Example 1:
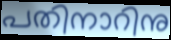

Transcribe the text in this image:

പതിനാറിനു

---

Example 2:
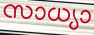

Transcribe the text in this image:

സാധ്യാ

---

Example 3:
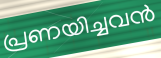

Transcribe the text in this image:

പ്രണയിച്ചവൻ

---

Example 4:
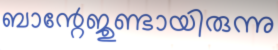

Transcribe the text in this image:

ബാന്റേജുണ്ടായിരുന്നു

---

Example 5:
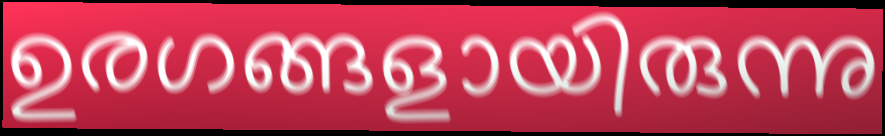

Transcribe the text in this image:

ഉരഗങ്ങളായിരുന്നു